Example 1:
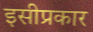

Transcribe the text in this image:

इसीप्रकार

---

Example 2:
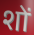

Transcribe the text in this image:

शों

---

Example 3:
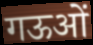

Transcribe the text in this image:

गऊओं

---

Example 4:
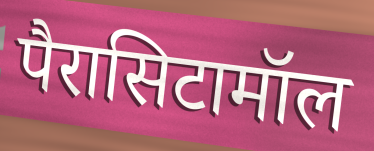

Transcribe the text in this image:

पैरासिटामॉल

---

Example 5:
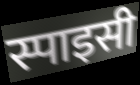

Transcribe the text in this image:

स्पाइसी